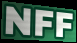
NFF